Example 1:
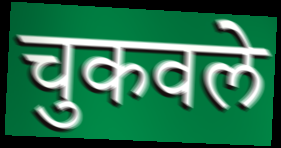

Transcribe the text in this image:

चुकवले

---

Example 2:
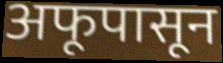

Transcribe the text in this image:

अफूपासून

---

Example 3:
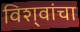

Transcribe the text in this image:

विश्वांचा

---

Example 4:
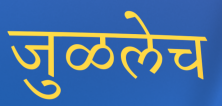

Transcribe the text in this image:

जुळलेच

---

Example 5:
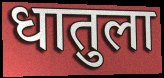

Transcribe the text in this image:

धातुला